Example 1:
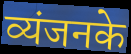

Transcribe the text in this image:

व्यंजनके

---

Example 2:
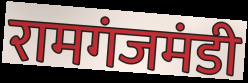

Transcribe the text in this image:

रामगंजमंडी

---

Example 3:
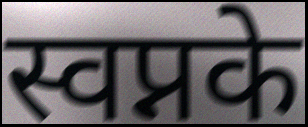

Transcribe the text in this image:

स्वप्नके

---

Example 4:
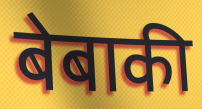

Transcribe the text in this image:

बेबाकी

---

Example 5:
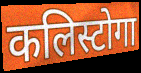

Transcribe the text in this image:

कलिस्टोगा